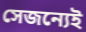
সেজন্যেই